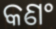
କଣଂ